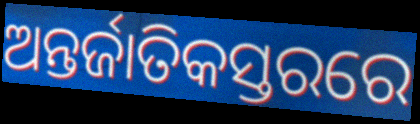
ଅନ୍ତର୍ଜାତିକସ୍ତରରେ